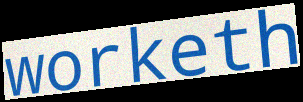
worketh